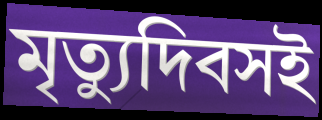
মৃত্যুদিবসই